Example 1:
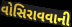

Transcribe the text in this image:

વોસિરાવવાની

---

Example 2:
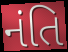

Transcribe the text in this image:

નંતિ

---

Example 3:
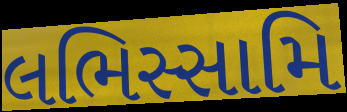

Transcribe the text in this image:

લભિસ્સામિ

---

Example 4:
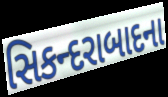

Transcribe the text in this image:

સિકન્દરાબાદના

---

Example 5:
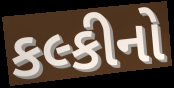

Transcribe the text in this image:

કલ્કીનો